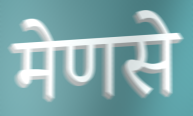
मेणसे